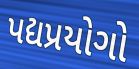
પદ્યપ્રયોગો